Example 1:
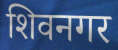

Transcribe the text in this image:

शिवनगर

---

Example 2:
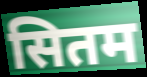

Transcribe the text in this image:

सितम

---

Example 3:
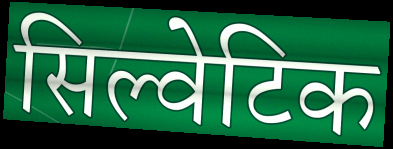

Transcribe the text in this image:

सिल्वेटिक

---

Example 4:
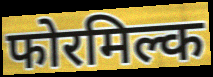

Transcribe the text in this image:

फोरमिल्क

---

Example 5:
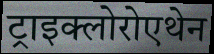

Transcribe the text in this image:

ट्राइक्लोरोएथेन